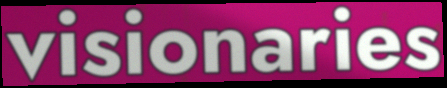
visionaries